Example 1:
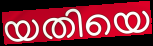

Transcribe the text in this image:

യതിയെ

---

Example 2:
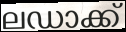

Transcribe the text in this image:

ലഡാക്ക്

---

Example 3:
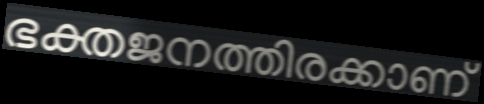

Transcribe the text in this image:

ഭക്തജനത്തിരക്കാണ്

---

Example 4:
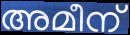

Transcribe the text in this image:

അമീന്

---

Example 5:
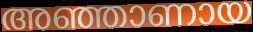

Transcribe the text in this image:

അഞ്ഞാണായ